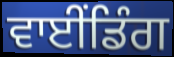
ਵਾਈਂਡਿੰਗ